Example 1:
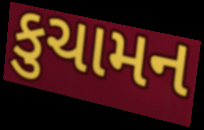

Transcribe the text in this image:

કુચામન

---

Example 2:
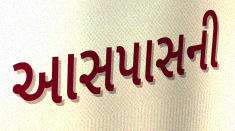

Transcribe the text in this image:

આસપાસની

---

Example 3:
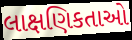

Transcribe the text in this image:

લાક્ષણિકતાઓ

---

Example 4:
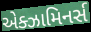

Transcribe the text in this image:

એક્ઝામિનર્સ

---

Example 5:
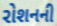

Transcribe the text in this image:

રોશનની